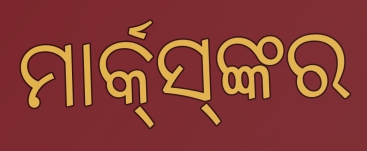
ମାର୍କ୍‌ସ୍‌ଙ୍କର